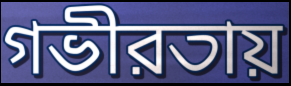
গভীরতায়